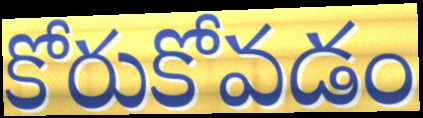
కోరుకోవడం